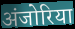
अंजोरिया